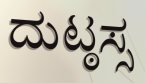
ದುಟ್ಠಸ್ಸ